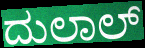
ದುಲಾಲ್